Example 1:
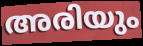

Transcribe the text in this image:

അരിയും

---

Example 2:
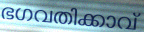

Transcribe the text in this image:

ഭഗവതിക്കാവ്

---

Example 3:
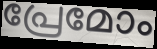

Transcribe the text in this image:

പ്രേമോം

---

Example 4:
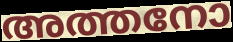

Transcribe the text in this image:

അത്തനോ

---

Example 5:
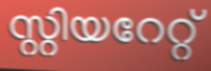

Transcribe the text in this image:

സ്റ്റിയറേറ്റ്